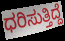
ಧರಿಸುತ್ತಿದ್ದೆ